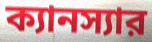
ক্যানস্যার